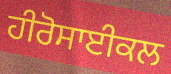
ਹੀਰੋਸਾਈਕਲ